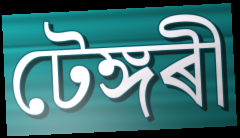
টেঙ্গৰী